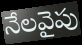
నేలవైపు